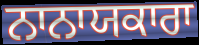
ਨਾਨਾਯਕਾਰਾ